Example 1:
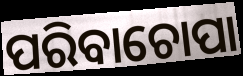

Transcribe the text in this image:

ପରିବାଚୋପା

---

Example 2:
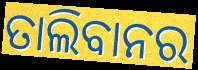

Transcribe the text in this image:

ତାଲିବାନର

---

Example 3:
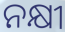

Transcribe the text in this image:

ନକ୍ଷୀ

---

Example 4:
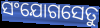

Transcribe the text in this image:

ସଂଯୋଗସେତୁ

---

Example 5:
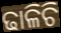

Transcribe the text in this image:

ଢାଳିଚି